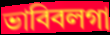
ভাবিবলগা